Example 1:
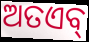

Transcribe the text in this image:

ଅତଏବ୍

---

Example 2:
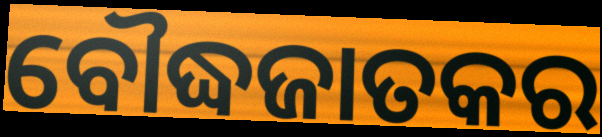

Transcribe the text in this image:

ବୌଦ୍ଧଜାତକର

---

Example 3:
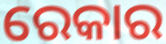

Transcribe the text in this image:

ରେକାର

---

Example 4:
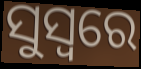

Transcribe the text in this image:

ସୁସ୍ୱରେ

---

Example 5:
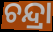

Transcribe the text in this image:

ଚନ୍ଦ୍ରା